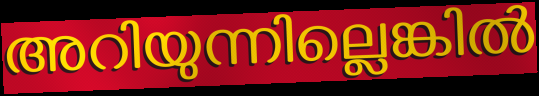
അറിയുന്നില്ലെങ്കിൽ